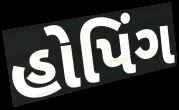
હોપિંગ